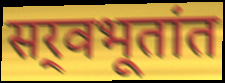
सर्वभूतांत